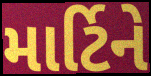
માર્ટિને